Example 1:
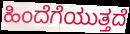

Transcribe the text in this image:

ಹಿಂದೆಗೆಯುತ್ತದೆ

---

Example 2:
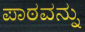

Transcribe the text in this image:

ಪಾಠವನ್ನು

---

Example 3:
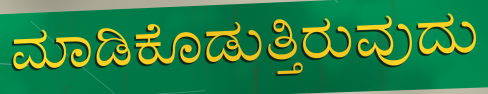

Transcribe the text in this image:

ಮಾಡಿಕೊಡುತ್ತಿರುವುದು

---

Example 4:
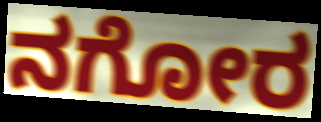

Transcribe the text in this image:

ನಗೋರ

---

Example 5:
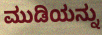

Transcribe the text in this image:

ಮುಡಿಯನ್ನು